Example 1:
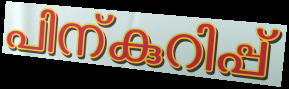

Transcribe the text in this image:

പിന്കുറിപ്പ്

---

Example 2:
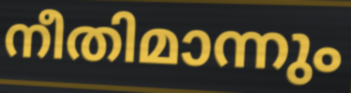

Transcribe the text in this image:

നീതിമാന്നും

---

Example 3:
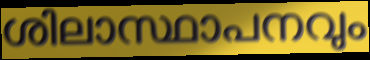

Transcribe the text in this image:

ശിലാസ്ഥാപനവും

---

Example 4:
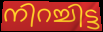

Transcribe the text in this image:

നിറച്ചിട്ട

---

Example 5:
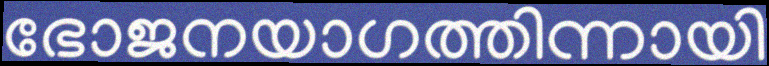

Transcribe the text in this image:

ഭോജനയാഗത്തിന്നായി